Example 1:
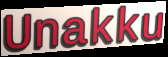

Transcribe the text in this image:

Unakku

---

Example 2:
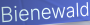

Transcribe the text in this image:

Bienewald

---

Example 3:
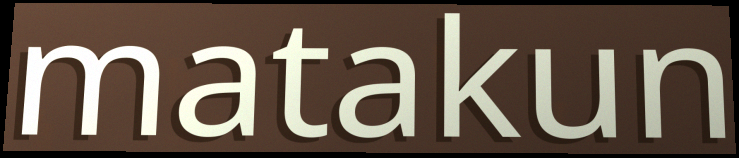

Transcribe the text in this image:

matakun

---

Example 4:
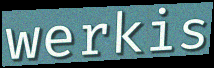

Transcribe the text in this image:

werkis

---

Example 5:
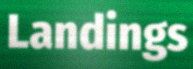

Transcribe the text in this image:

Landings